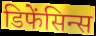
डिफेंसिन्स